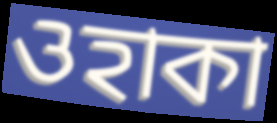
ওহাকা